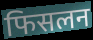
फिसलन